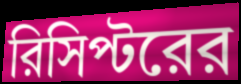
রিসিপ্টরের